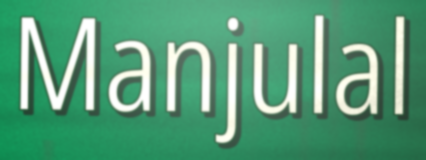
Manjulal